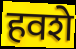
हवशे